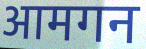
आमगन